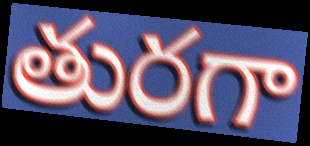
తురగా